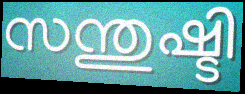
സന്തുഷ്ടി